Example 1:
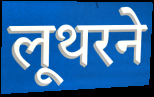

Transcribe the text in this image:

लूथरने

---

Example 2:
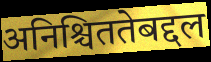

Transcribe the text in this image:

अनिश्चिततेबद्दल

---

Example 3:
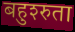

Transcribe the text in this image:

बहुश्रुता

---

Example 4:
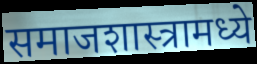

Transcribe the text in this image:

समाजशास्त्रामध्ये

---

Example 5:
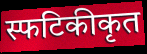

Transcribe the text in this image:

स्फटिकीकृत